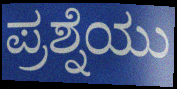
ಪ್ರಶ್ನೆಯು